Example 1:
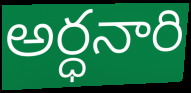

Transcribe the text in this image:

అర్ధనారి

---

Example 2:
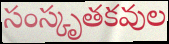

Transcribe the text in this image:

సంస్కృతకవుల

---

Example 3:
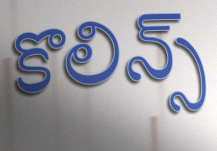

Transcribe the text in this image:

కొలిన్స్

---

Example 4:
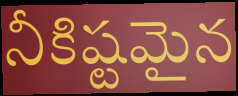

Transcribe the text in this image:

నీకిష్టమైన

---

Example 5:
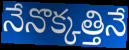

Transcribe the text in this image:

నేనొక్కత్తినే